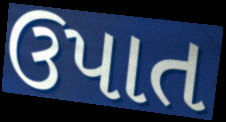
ઉપાત